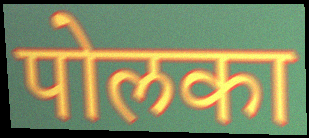
पोलका